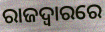
ରାଜଦ୍ୱାରରେ